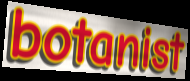
botanist